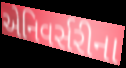
એનિવર્સરીના